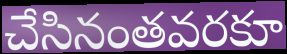
చేసినంతవరకూ